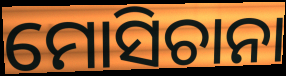
ମୋସିଚାନା